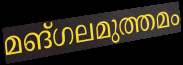
മങ്ഗലമുത്തമം